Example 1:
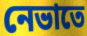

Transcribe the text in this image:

নেভাতে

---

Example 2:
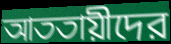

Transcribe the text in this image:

আততায়ীদের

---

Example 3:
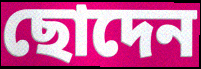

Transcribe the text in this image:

ছোদেন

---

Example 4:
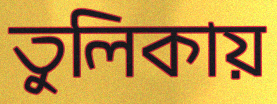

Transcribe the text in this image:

তুলিকায়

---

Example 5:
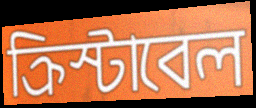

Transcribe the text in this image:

ক্রিস্টাবেল